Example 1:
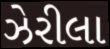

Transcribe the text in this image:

ઝેરીલા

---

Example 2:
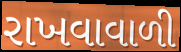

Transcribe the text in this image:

રાખવાવાળી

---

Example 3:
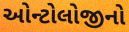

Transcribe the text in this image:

ઓન્ટોલોજીનો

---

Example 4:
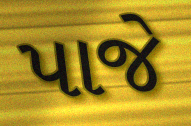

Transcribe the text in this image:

પાજે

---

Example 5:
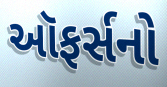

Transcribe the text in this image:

ઑફર્સનો